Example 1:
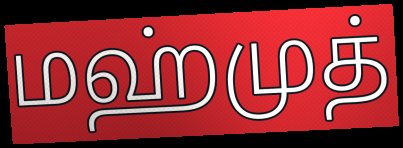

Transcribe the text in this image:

மஹ்முத்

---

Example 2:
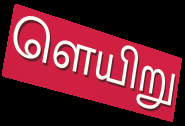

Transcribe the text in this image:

ளெயிறு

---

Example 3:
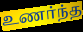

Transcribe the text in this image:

உணர்ந்த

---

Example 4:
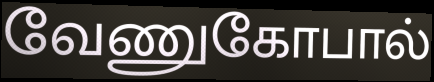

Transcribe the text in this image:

வேணுகோபால்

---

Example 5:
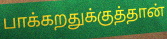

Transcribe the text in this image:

பாக்கறதுக்குத்தான்